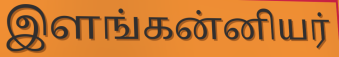
இளங்கன்னியர்